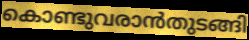
കൊണ്ടുവരാൻതുടങ്ങി